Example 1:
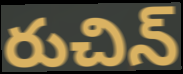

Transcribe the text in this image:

రుచిన్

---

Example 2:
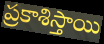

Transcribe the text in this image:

ప్రకాశిస్తాయి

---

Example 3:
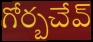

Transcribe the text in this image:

గోర్బచేవ్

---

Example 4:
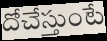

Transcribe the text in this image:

దోచేస్తుంటే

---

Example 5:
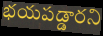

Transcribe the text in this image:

భయపడ్డారని